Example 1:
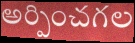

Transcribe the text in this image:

అర్పించగల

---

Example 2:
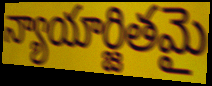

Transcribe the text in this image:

న్యాయార్జితమై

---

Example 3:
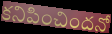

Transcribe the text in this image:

కనిపించిందనో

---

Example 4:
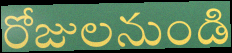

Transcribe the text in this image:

రోజులనుండి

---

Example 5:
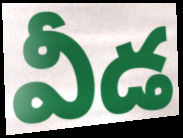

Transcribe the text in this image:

వీడ